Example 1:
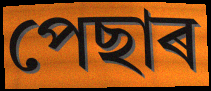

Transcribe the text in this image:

পেছাৰ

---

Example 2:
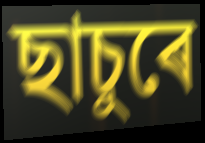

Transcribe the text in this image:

ছাচুৰে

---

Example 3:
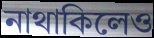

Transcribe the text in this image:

নাথাকিলেও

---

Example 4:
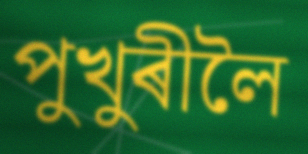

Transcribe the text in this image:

পুখুৰীলৈ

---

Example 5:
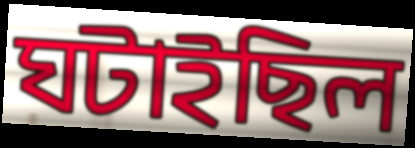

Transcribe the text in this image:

ঘটাইছিল